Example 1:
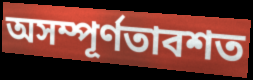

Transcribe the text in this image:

অসম্পূর্ণতাবশত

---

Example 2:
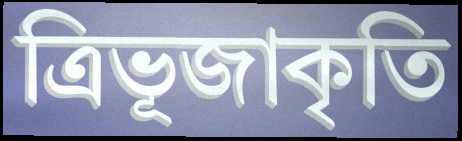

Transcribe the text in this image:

ত্রিভূজাকৃতি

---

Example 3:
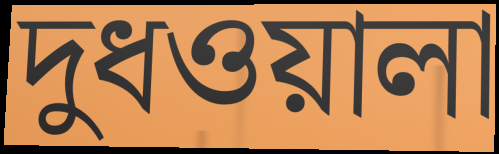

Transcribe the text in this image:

দুধওয়ালা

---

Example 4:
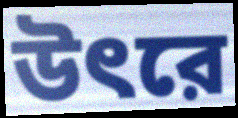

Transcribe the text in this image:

উৎরে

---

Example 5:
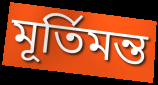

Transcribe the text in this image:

মূর্তিমন্ত